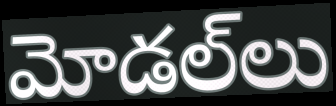
మోడల్‌లు